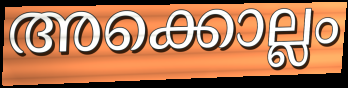
അക്കൊല്ലം